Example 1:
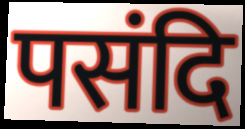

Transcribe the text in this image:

पसंदि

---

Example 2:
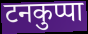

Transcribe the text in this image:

टनकुप्पा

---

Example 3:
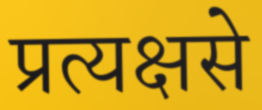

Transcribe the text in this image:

प्रत्यक्षसे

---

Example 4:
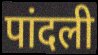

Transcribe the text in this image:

पांदली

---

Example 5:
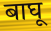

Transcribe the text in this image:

बाघू